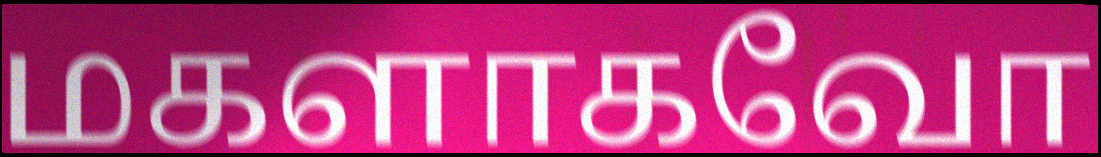
மகளாகவோ